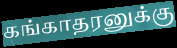
கங்காதரனுக்கு